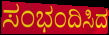
ಸಂಭಂದಿಸಿದ